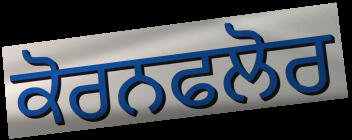
ਕੋਰਨਫਲੋਰ